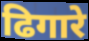
ढिगारे